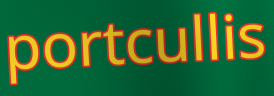
portcullis